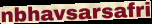
nbhavsarsafri